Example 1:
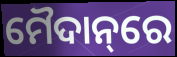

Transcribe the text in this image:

ମୈଦାନ୍‌ରେ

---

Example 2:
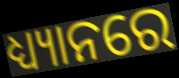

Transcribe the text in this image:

ଧ୍ୟ୍ୟାନରେ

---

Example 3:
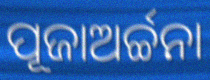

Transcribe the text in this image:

ପୂଜାଅର୍ଚ୍ଚନା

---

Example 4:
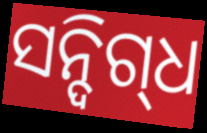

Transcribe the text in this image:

ସନ୍ଦିଗ୍‌ଧ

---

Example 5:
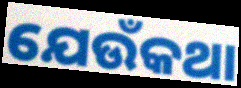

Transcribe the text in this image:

ଯେଉଁକଥା